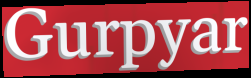
Gurpyar